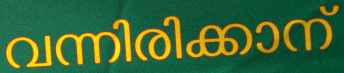
വന്നിരിക്കാന്